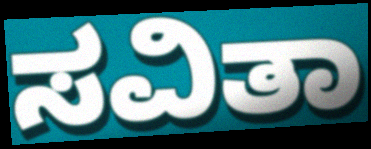
ಸವಿತಾ